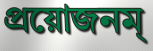
প্রয়োজনম্